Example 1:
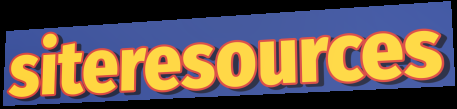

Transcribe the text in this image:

siteresources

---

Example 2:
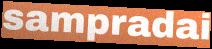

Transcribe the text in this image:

sampradai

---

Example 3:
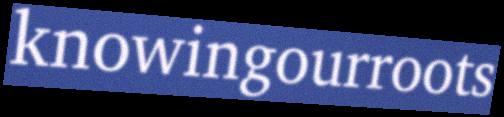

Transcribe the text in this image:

knowingourroots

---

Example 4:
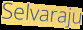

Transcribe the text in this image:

Selvaraju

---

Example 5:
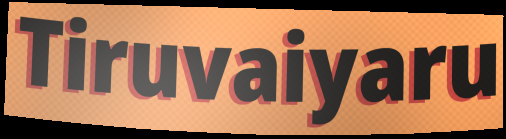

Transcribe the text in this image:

Tiruvaiyaru